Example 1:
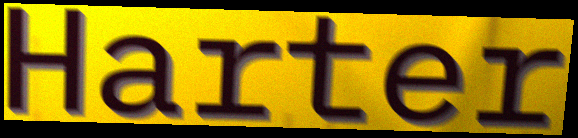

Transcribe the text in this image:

Harter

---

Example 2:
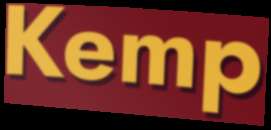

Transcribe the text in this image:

Kemp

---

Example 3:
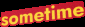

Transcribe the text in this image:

sometime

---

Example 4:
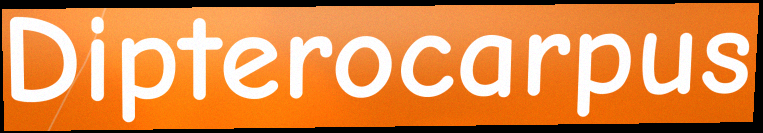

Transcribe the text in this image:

Dipterocarpus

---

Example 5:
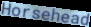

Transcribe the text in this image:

Horsehead